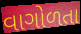
વાગોળતા